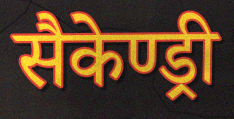
सैकेण्ड्री